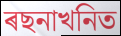
ৰছনাখনিত